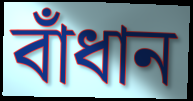
বাঁধান